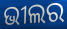
ଭୀଲର